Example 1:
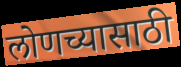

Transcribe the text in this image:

लोणच्यासाठी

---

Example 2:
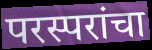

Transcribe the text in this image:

परस्परांचा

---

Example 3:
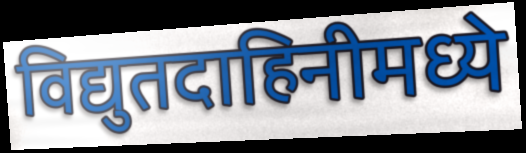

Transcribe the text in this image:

विद्युतदाहिनीमध्ये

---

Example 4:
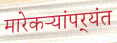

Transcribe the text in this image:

मारेकऱ्यांपर्यंत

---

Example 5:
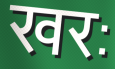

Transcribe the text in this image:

खरः